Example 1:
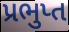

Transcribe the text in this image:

પ્રભુપ્ત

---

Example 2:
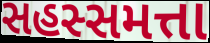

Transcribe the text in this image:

સહસ્સમત્તા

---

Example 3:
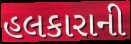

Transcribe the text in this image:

હલકારાની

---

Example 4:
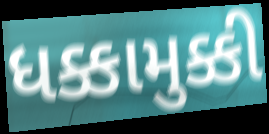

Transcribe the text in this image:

ધક્કામુક્કી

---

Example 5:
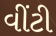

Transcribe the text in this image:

વીંટી